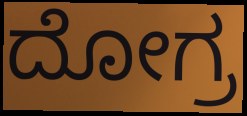
ದೋಗ್ರ